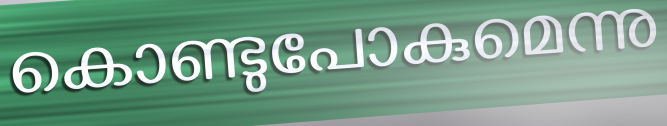
കൊണ്ടുപോകുമെന്നു